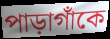
পাড়াগাঁকে